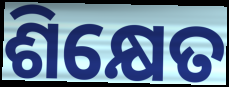
ଶିକ୍ଷେତ